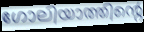
ഗോലിയാത്തിന്റെ